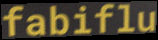
fabiflu